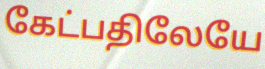
கேட்பதிலேயே